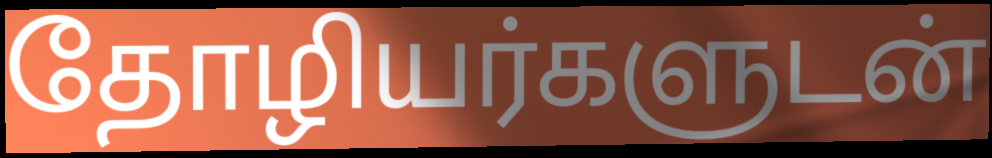
தோழியர்களுடன்